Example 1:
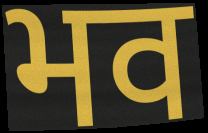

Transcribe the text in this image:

भव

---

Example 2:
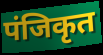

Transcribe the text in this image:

पंजिकृत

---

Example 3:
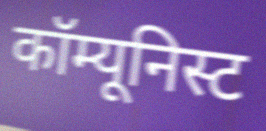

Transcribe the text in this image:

कॉम्यूनिस्ट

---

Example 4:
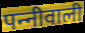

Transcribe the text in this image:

पन्नीवाली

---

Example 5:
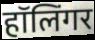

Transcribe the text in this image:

हॉलिंगर